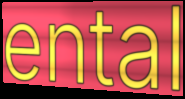
ental